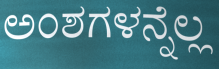
ಅಂಶಗಳನ್ನೆಲ್ಲ